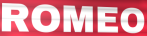
ROMEO